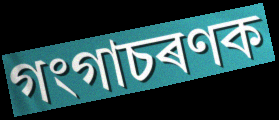
গংগাচৰণক